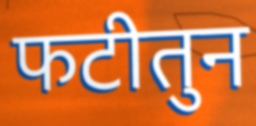
फटीतुन